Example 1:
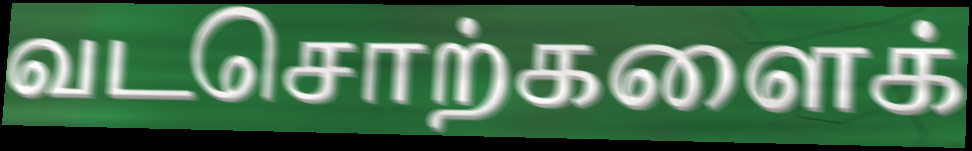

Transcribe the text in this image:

வடசொற்களைக்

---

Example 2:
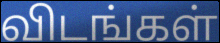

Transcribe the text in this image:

விடங்கள்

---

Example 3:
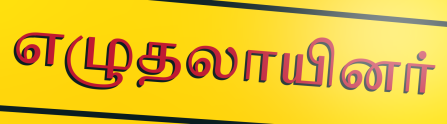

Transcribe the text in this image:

எழுதலாயினர்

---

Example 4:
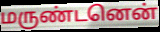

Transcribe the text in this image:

மருண்டனென்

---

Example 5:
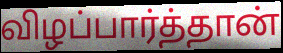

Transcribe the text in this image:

விழப்பார்த்தான்